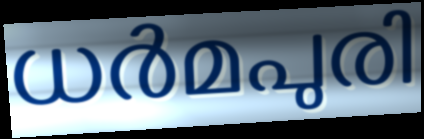
ധർമപുരി